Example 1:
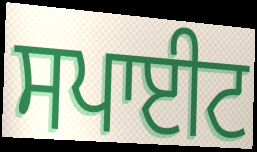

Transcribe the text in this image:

ਸਪਾਈਟ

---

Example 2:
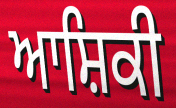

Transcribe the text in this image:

ਆਸ਼ਿਕੀ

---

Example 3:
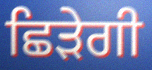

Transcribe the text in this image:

ਛਿੜੇਗੀ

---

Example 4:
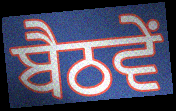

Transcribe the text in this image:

ਬੈਠਵੇਂ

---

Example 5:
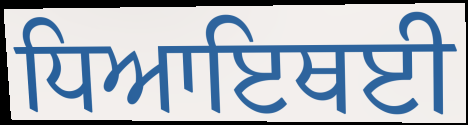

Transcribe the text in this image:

ਧਿਆਇਥਈ